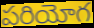
పరియోగ